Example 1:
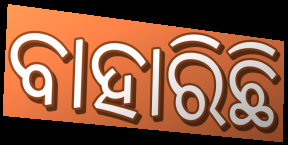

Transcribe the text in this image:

ବାହାରିଛି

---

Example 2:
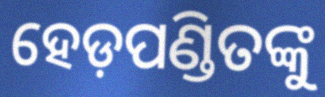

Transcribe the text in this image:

ହେଡ଼ପଣ୍ଡିତଙ୍କୁ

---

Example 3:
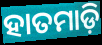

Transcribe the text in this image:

ହାତମାଡ଼ି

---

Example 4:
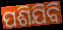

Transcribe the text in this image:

ପଶିଯିବି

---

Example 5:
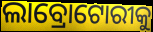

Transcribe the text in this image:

ଲାବ୍ରୋଟୋରୀକୁ